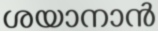
ശയാനാൻ